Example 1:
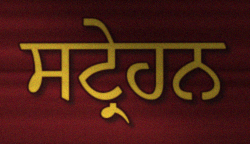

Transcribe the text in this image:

ਸਟ੍ਰੇਹਨ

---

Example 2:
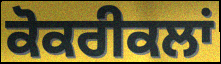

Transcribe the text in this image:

ਕੋਕਰੀਕਲਾਂ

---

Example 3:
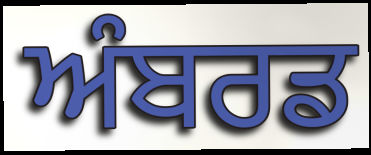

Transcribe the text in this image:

ਅੰਬਰਡ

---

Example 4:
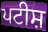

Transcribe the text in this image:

ਪਟੀਸ਼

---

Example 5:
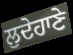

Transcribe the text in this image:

ਲੁਦੇਹਾਣੇ